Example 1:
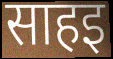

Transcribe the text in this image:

साहइ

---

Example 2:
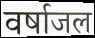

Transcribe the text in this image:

वर्षाजल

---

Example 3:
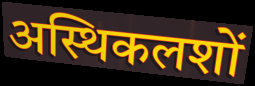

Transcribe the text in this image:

अस्थिकलशों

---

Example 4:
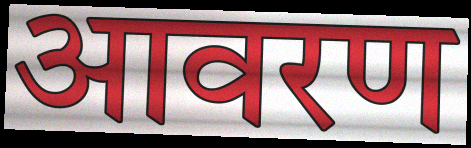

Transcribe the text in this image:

आवरण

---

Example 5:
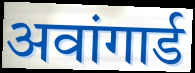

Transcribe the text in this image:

अवांगार्ड